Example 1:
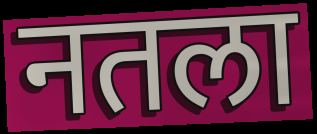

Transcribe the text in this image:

नतला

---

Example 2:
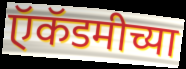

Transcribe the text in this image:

ऍकॅडमीच्या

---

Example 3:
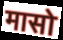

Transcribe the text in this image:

मासो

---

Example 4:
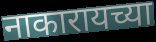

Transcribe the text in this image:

नाकारायच्या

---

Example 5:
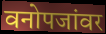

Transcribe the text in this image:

वनोपजांवर